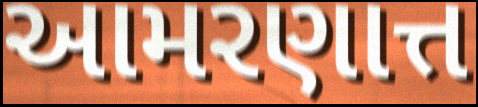
આમરણાત્ત